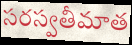
సరస్వతీమాత